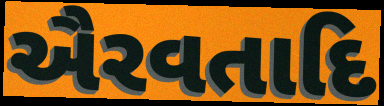
ઐરવતાદિ